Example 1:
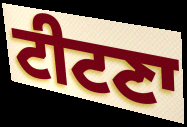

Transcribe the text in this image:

ਟੀਟਣਾ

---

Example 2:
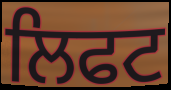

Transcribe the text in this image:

ਲਿਫਟ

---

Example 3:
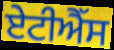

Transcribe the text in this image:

ਏਟੀਐੱਸ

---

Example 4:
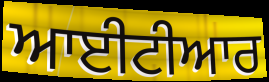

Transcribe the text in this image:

ਆਈਟੀਆਰ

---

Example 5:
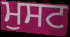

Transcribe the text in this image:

ਮੁਸਟ